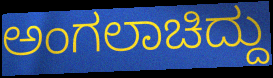
ಅಂಗಲಾಚಿದ್ದು